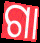
ଗା